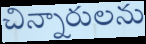
చిన్నారులను